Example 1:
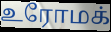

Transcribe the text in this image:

உரோமக்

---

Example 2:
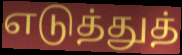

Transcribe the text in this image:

எடுத்துத்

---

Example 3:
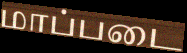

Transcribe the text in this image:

மாப்படை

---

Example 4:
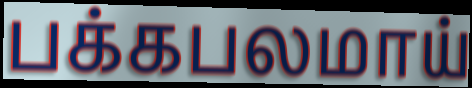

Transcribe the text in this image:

பக்கபலமாய்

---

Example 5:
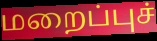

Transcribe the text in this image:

மறைப்புச்